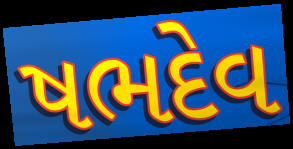
ષભદેવ